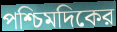
পশ্চিমদিকের